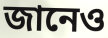
জানেও